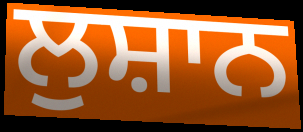
ਲੁਸ਼ਾਨ